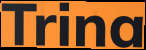
Trina